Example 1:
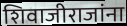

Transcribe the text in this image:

शिवाजीराजांना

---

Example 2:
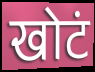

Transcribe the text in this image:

खोटं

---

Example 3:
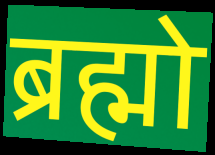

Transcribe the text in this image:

ब्रह्मो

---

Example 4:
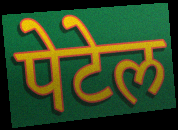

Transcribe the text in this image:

पेटेल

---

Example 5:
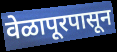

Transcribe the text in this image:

वेळापूरपासून